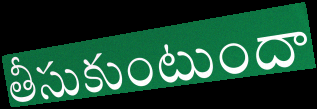
తీసుకుంటుందా